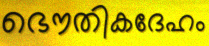
ഭൌതികദേഹം